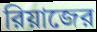
রিয়াজের